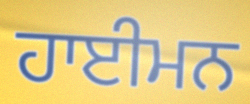
ਹਾਈਮਨ